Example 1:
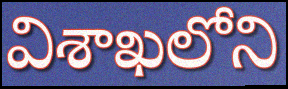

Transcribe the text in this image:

విశాఖలోని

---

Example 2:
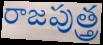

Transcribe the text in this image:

రాజపుత్త్ర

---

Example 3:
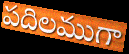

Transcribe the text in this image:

పదిలముగా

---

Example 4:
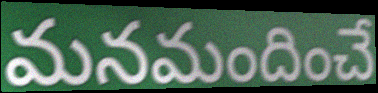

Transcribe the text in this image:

మనమందించే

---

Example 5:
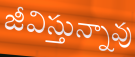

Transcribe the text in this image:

జీవిస్తున్నావు